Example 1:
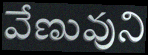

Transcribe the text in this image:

వేణువుని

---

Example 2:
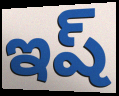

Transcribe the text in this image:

ఇష్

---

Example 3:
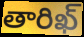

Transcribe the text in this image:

తారిఖ్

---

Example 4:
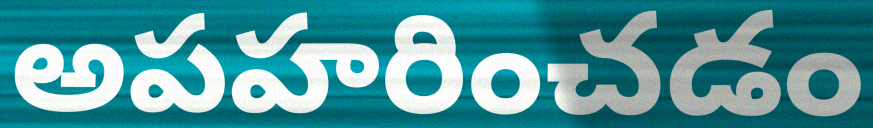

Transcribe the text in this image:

అపహరించడం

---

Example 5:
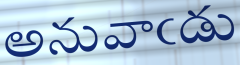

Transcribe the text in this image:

అనువాఁడు